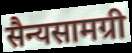
सैन्यसामग्री